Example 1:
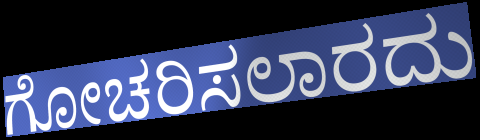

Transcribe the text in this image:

ಗೋಚರಿಸಲಾರದು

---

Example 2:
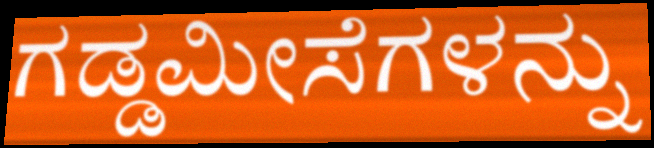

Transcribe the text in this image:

ಗಡ್ಡಮೀಸೆಗಳನ್ನು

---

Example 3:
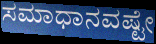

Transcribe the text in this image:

ಸಮಾಧಾನವಷ್ಟೇ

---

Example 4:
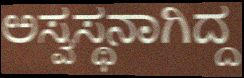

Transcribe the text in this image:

ಅಸ್ವಸ್ಥನಾಗಿದ್ದ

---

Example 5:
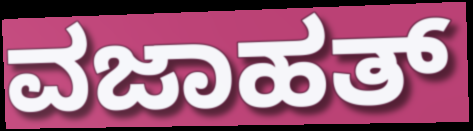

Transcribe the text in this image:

ವಜಾಹತ್